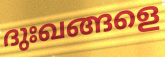
ദുഃഖങ്ങളെ